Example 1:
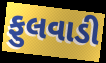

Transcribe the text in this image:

ફુલવાડી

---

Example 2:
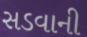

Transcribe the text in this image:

સડવાની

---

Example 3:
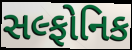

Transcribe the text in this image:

સલ્ફોનિક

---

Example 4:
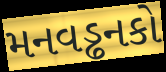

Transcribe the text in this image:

મનવડ્ઢનકો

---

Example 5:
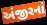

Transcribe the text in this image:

અંજીરનાં